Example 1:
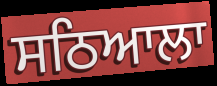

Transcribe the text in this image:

ਸਠਿਆਲਾ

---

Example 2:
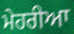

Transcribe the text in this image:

ਮੇਹਰੀਆ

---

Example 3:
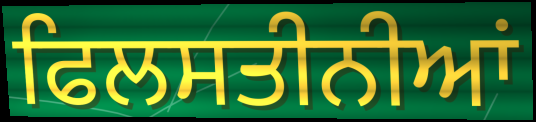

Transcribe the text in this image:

ਫਿਲਸਤੀਨੀਆਂ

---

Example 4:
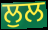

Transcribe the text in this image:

ਲੁਲ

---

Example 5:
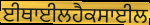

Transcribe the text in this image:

ਈਥਾਈਲਹੈਕਸਾਈਲ